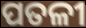
ପତଳୀ